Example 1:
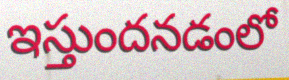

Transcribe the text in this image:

ఇస్తుందనడంలో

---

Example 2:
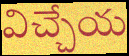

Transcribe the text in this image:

విచ్చేయ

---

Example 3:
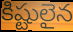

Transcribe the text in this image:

కిష్టులైన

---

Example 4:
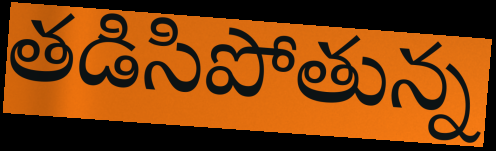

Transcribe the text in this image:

తడిసిపోతున్న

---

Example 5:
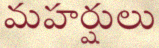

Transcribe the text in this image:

మహర్షులు